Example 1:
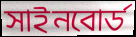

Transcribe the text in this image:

সাইনবোর্ড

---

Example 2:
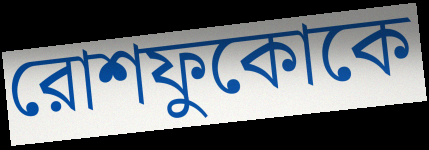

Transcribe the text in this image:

রোশফুকোকে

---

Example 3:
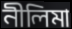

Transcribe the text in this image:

নীলিমা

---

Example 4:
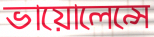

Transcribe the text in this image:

ভায়োলেন্সে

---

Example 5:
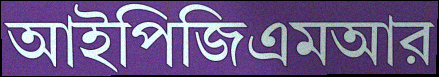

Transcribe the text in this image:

আইপিজিএমআর